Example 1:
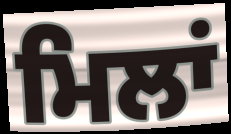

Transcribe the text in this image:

ਮਿਲਾਂ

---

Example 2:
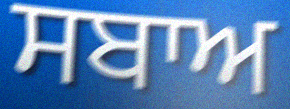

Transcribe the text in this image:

ਸਬਾਅ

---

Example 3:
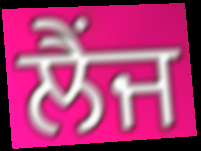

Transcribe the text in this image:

ਲੈਂਜ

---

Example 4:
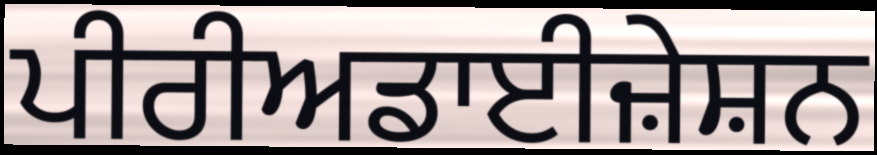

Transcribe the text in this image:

ਪੀਰੀਅਡਾਈਜ਼ੇਸ਼ਨ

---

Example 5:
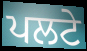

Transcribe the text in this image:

ਪਲਟੇ